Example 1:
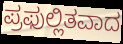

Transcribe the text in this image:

ಪ್ರಫುಲ್ಲಿತವಾದ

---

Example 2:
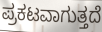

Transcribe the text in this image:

ಪ್ರಕಟವಾಗುತ್ತದೆ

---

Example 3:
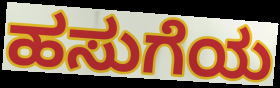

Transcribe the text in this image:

ಹಸುಗೆಯ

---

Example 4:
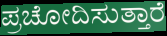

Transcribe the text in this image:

ಪ್ರಚೋದಿಸುತ್ತಾರೆ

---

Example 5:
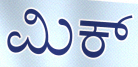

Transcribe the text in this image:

ಮಿಕ್